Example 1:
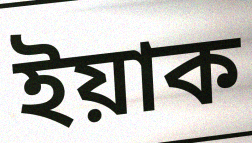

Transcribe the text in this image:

ইয়াক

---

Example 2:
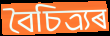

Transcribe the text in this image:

বৈচিত্ৰ্যৰ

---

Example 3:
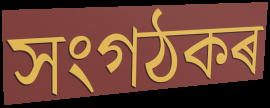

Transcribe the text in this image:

সংগঠকৰ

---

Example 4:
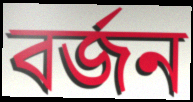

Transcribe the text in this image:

বৰ্জন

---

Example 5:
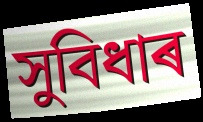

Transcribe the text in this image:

সুবিধাৰ